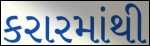
કરારમાંથી